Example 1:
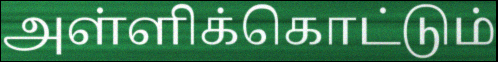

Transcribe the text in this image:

அள்ளிக்கொட்டும்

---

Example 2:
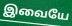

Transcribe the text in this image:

இவையே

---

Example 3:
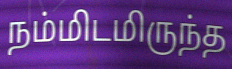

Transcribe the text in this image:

நம்மிடமிருந்த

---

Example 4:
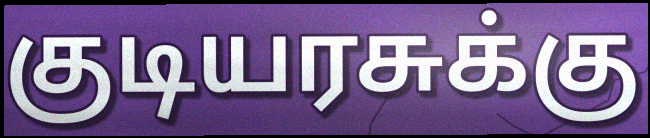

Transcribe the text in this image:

குடியரசுக்கு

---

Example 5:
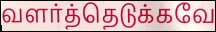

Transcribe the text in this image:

வளர்த்தெடுக்கவே